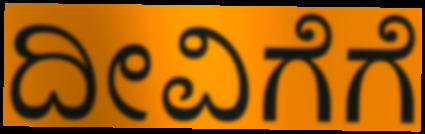
ದೀವಿಗೆಗೆ